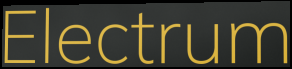
Electrum